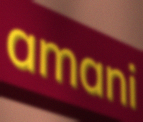
amani